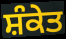
ਸ਼ੰਕੇਤ